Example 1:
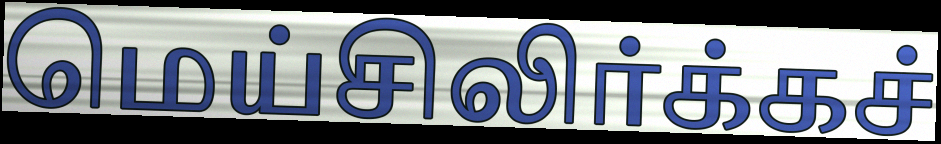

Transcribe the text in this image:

மெய்சிலிர்க்கச்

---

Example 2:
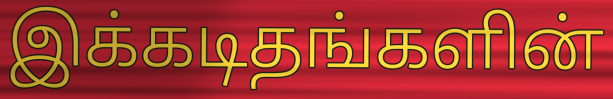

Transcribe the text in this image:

இக்கடிதங்களின்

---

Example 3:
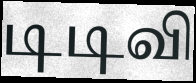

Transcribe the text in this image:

டிடிவி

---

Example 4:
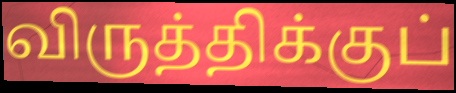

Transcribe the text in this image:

விருத்திக்குப்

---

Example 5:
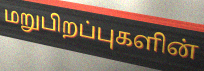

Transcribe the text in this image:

மறுபிறப்புகளின்